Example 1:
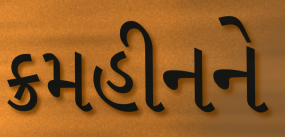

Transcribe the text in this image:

ક્રમહીનને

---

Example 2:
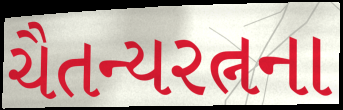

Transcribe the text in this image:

ચૈતન્યરત્નના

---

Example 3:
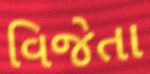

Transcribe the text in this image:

વિજેતા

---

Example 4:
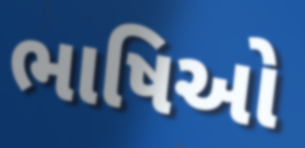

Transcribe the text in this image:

ભાષિઓ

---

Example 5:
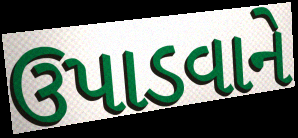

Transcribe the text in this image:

ઉપાડવાને